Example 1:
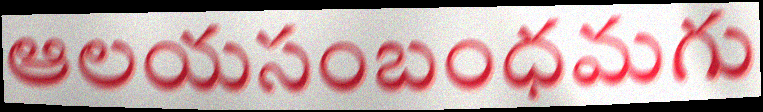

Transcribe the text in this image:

ఆలయసంబంధమగు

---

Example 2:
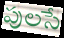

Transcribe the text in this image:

పులసే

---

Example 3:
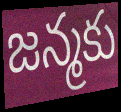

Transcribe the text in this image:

జన్మకు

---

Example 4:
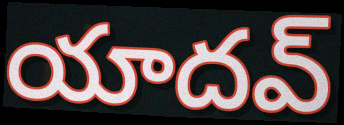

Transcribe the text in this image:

యాదవ్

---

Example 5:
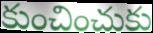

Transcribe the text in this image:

కుంచించుకు